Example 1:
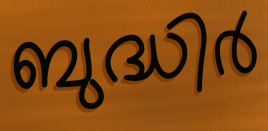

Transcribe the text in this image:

ബുദ്ധിർ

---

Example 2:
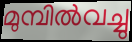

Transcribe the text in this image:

മുമ്പിൽവച്ചു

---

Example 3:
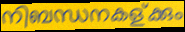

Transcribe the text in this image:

നിബന്ധനകള്ക്കും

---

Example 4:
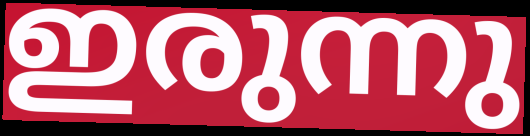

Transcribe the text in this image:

ഇരുന്നു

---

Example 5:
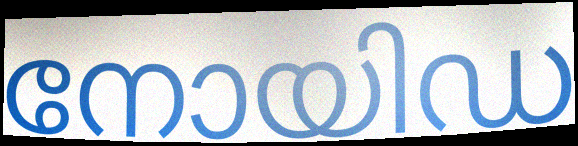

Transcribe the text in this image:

നോയിഡ